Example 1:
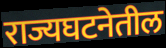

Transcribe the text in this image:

राज्यघटनेतील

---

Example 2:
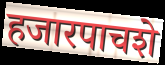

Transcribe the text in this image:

हजारपाचशे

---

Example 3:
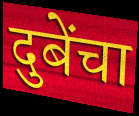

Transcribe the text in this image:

दुबेंचा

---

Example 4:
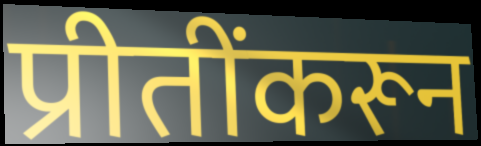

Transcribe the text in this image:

प्रीतींकरून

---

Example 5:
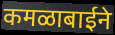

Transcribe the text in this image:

कमळाबाईने